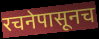
रचनेपासूनच